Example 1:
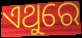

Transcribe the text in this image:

ଏଥୁରେ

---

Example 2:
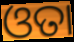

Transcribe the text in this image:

ଓତା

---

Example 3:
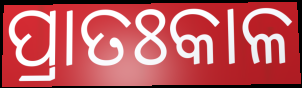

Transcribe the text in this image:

ପ୍ରାତଃକାଳ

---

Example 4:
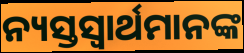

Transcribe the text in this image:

ନ୍ୟସ୍ତସ୍ଵାର୍ଥମାନଙ୍କ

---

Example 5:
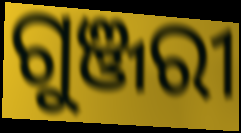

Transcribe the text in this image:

ଗୁଞ୍ଜରୀ